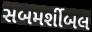
સબમર્શીબલ